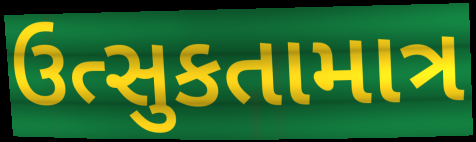
ઉત્સુકતામાત્ર